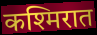
कश्मिरात